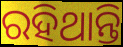
ରହିଥାନ୍ତି